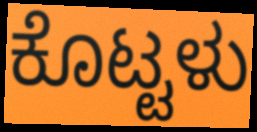
ಕೊಟ್ಟಳು